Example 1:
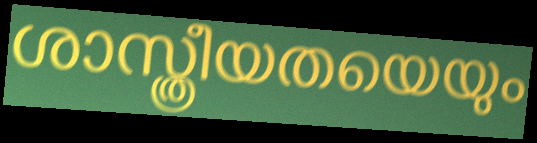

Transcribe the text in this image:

ശാസ്ത്രീയതയെയും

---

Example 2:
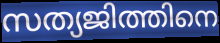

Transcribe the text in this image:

സത്യജിത്തിനെ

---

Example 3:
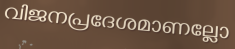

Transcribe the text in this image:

വിജനപ്രദേശമാണല്ലോ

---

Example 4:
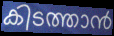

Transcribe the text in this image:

കിടത്താൻ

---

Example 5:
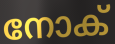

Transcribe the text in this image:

നോക്